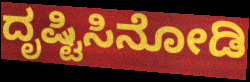
ದೃಷ್ಟಿಸಿನೋಡಿ